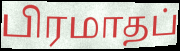
பிரமாதப்